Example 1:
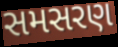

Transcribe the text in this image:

સમસરણ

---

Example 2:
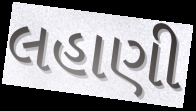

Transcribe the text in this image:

લહાણી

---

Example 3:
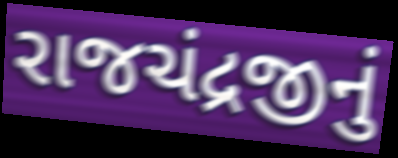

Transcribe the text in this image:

રાજચંદ્રજીનું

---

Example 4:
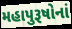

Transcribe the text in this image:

મહાપુરૂષોનાં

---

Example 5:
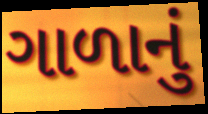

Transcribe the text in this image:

ગાળાનું